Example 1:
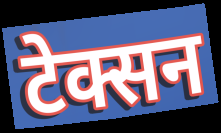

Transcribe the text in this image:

टेक्सन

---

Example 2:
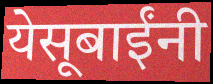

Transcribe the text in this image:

येसूबाईंनी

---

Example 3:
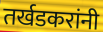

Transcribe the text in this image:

तर्खडकरांनी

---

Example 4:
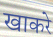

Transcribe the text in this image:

खाकरे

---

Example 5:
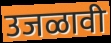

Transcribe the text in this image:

उजळावी